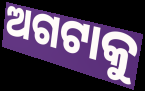
ଅଗଟାକୁ